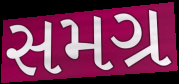
સમગ્ર